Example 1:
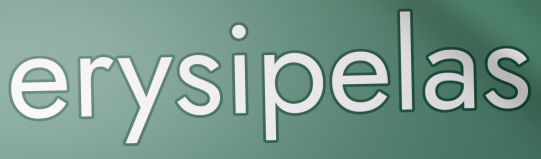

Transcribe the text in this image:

erysipelas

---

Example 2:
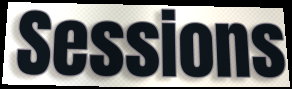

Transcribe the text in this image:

Sessions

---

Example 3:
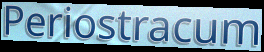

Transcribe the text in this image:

Periostracum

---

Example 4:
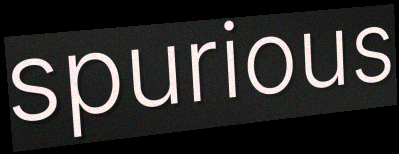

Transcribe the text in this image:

spurious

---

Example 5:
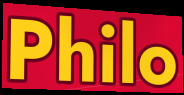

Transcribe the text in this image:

Philo